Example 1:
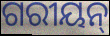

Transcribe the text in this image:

ଗରୀୟନ୍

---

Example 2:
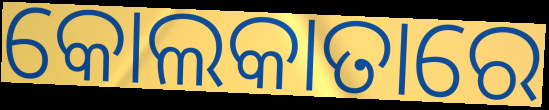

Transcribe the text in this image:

କୋଲକାତାରେ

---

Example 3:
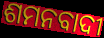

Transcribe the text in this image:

ଶମନବାଦୀ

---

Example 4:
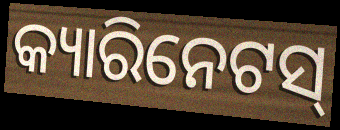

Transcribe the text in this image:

କ୍ୟାରିନେଟସ୍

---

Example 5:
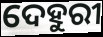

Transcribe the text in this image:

ଦେହୁରୀ